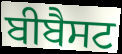
ਬੀਬੈਸਟ